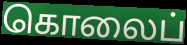
கொலைப்